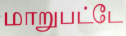
மாறுபட்டே